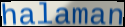
halaman